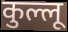
कुल्लू